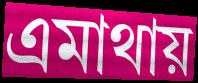
এমাথায়